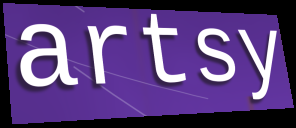
artsy